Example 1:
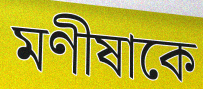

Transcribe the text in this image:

মণীষাকে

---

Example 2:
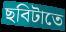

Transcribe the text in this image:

ছবিটাতে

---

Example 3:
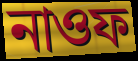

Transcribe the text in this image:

নাওফ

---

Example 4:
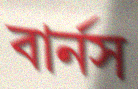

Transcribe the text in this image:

বার্নস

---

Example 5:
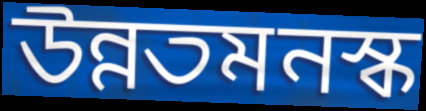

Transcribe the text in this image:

উন্নতমনস্ক